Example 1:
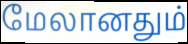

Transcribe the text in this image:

மேலானதும்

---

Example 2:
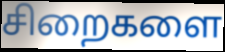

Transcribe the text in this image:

சிறைகளை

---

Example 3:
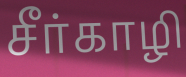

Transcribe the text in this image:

சீர்காழி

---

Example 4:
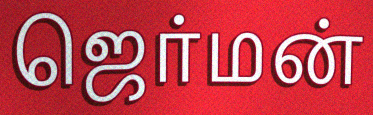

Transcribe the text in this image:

ஜெர்மன்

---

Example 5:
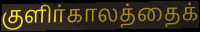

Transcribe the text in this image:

குளிர்காலத்தைக்